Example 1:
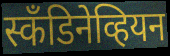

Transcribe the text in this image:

स्कँडिनेव्हियन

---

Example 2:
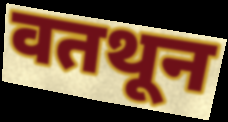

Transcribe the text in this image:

वतथून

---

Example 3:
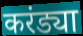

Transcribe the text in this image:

करंड्या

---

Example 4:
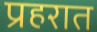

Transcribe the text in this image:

प्रहरात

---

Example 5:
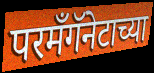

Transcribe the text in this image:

परमँगॅनेटाच्या